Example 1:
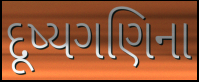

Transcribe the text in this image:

દૂષ્યગણિના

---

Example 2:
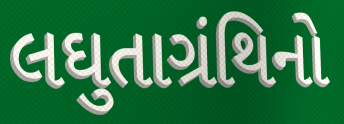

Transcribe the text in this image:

લઘુતાગ્રંથિનો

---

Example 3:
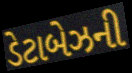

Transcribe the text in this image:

ડેટાબેઝની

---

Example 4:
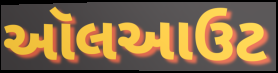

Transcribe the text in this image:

ઑલઆઉટ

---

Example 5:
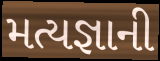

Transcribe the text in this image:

મત્યજ્ઞાની